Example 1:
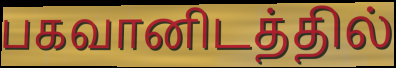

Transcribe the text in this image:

பகவானிடத்தில்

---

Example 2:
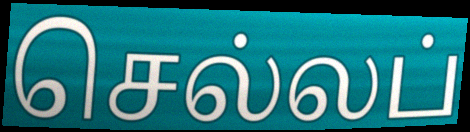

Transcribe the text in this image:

செல்லப்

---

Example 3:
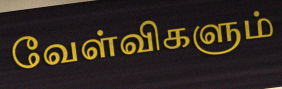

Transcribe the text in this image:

வேள்விகளும்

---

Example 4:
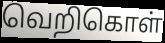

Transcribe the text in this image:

வெறிகொள்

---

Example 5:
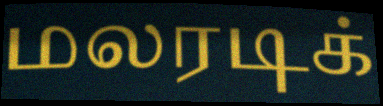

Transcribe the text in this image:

மலரடிக்